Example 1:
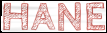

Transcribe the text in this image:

HANE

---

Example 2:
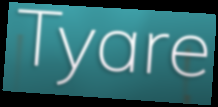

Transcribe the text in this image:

Tyare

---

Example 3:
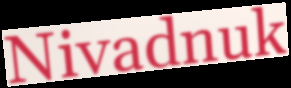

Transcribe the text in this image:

Nivadnuk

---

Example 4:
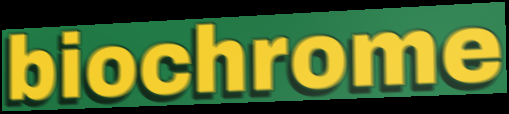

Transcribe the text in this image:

biochrome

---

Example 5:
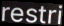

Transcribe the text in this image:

restri